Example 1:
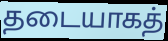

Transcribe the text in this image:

தடையாகத்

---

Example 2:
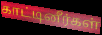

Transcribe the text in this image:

காட்டினீர்கள்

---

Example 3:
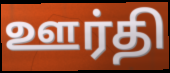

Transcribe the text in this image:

ஊர்தி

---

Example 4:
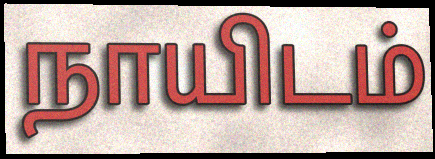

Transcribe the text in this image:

நாயிடம்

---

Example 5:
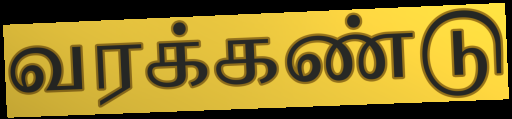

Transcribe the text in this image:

வரக்கண்டு